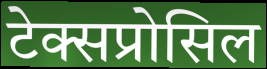
टेक्सप्रोसिल